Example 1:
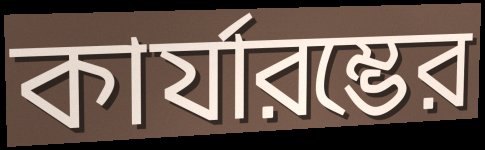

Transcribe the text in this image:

কার্যারম্ভের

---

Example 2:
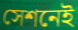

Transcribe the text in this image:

সেশনেই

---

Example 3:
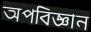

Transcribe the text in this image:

অপবিজ্ঞান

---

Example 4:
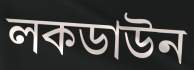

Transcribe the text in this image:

লকডাউন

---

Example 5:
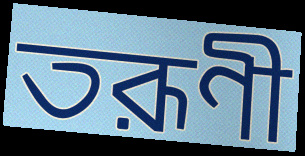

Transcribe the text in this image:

তরূণী